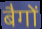
बैगों